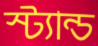
স্ট্যান্ড